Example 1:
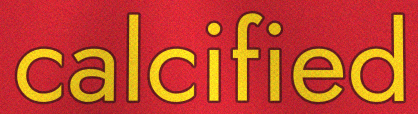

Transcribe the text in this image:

calcified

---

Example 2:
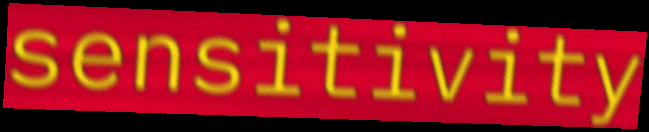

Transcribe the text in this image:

sensitivity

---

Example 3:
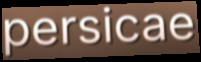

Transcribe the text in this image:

persicae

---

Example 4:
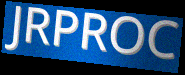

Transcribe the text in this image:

JRPROC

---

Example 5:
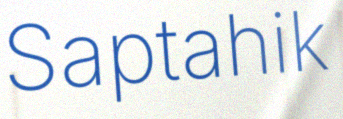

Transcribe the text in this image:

Saptahik